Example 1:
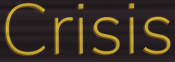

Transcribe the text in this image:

Crisis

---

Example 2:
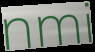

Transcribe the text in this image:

nmi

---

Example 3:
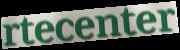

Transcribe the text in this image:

rtecenter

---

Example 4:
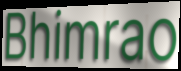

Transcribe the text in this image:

Bhimrao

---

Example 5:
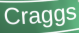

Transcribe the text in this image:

Craggs